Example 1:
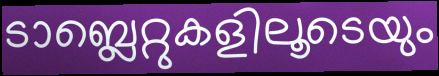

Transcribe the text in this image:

ടാബ്ലെറ്റുകളിലൂടെയും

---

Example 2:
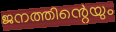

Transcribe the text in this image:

ജനത്തിന്റെയും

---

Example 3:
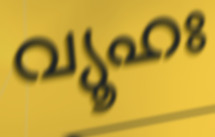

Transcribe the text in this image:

വ്യൂഹഃ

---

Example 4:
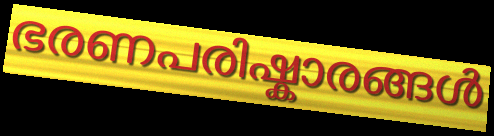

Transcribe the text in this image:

ഭരണപരിഷ്കാരങ്ങൾ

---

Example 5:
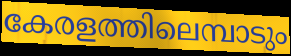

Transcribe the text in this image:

കേരളത്തിലെമ്പാടും